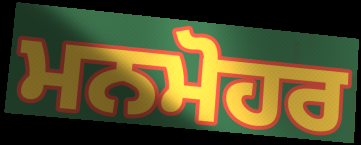
ਮਨਮੋਹਰ